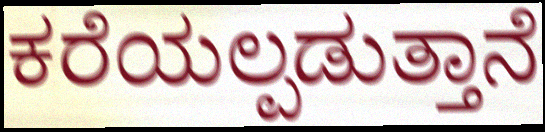
ಕರೆಯಲ್ಪಡುತ್ತಾನೆ